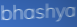
bhashya